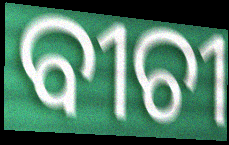
ବୀଚୀ